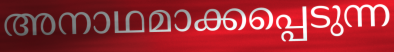
അനാഥമാക്കപ്പെടുന്ന